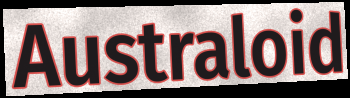
Australoid